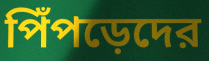
পিঁপড়েদের